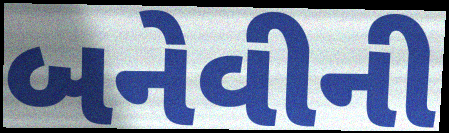
બનેવીની